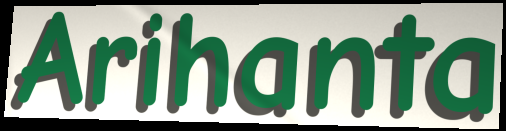
Arihanta